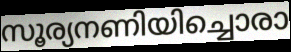
സൂര്യനണിയിച്ചൊരാ